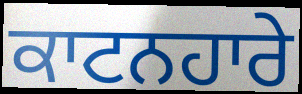
ਕਾਟਨਹਾਰੇ